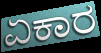
ಏಕಾರ